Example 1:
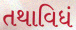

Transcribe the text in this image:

તથાવિધં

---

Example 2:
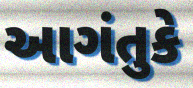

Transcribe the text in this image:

આગંતુકે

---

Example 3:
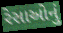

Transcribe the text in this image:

રેસાઓનું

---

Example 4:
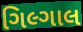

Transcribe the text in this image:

ગિલ્ગાલ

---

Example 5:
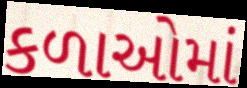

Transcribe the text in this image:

કળાઓમાં